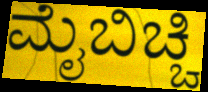
ಮೈಬಿಚ್ಚಿ